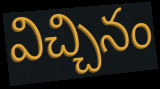
విచ్చినం